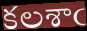
కలశాఁ